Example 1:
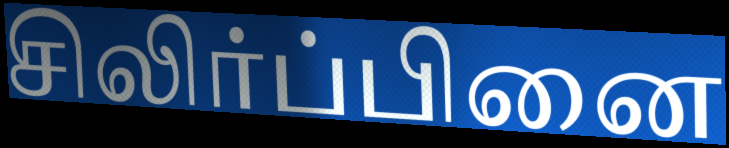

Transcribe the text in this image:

சிலிர்ப்பினை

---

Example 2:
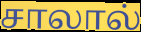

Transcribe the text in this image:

சாலால்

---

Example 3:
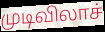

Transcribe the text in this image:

முடிவிலாச்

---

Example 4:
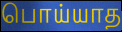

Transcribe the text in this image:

பொய்யாத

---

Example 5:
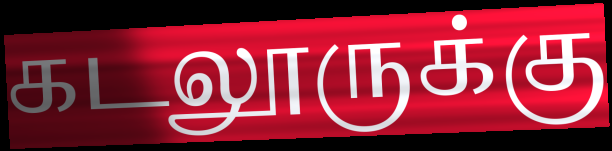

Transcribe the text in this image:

கடலூருக்கு